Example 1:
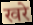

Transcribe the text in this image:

खरे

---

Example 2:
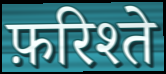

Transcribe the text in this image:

फ़रिश्ते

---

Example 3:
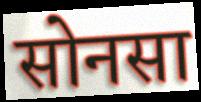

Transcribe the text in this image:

सोनसा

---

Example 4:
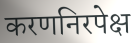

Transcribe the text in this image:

करणनिरपेक्ष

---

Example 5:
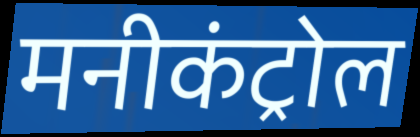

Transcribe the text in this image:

मनीकंट्रोल